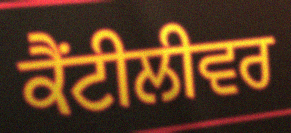
ਕੈਂਟੀਲੀਵਰ